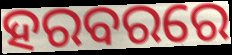
ହରବରରେ